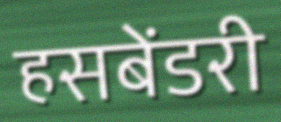
हसबेंडरी